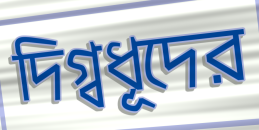
দিগ্বধূদের